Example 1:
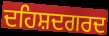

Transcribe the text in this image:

ਦਹਿਸ਼ਦਗਰਦ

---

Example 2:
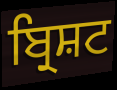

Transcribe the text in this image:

ਬ੍ਰਿਸ਼ਟ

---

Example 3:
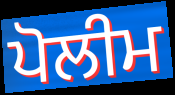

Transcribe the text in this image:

ਪੋਲੀਮ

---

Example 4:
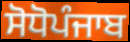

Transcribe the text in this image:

ਸੋਧੋਪੰਜਾਬ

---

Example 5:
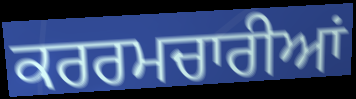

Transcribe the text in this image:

ਕਰਰਮਚਾਰੀਆਂ